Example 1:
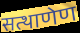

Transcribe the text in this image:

सत्थाणेण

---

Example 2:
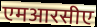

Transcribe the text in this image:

एमआरसीए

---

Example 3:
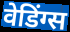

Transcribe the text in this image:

वेडिंग्स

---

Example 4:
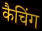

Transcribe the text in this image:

कैचिंग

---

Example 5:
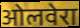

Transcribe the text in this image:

ओलवेरा